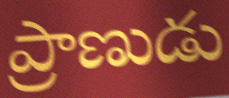
ప్రాణుడు